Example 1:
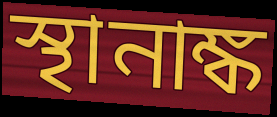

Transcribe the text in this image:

স্থানাঙ্ক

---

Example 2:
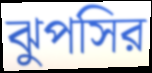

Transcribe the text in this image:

ঝুপসির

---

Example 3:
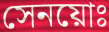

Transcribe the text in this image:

সেনয়োঃ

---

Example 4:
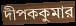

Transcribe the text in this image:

দীপককুমার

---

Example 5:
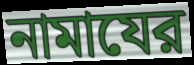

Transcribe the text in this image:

নামাযের